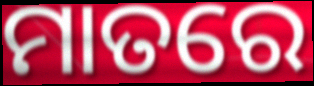
ମାତରେ